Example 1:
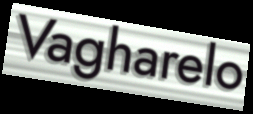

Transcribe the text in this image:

Vagharelo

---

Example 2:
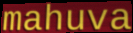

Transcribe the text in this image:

mahuva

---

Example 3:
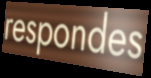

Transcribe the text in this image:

respondes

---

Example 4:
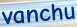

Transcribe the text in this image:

vanchu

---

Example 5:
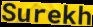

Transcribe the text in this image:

Surekh